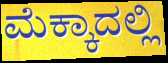
ಮೆಕ್ಕಾದಲ್ಲಿ